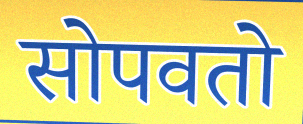
सोपवतो